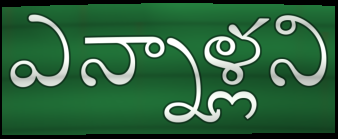
ఎన్నాళ్లని